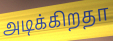
அடிக்கிறதா